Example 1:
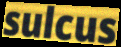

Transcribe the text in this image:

sulcus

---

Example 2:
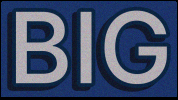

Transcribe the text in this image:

BIG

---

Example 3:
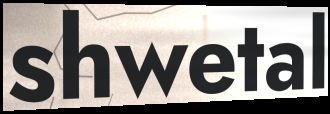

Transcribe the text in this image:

shwetal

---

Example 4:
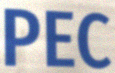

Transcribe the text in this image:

PEC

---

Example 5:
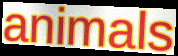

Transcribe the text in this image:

animals